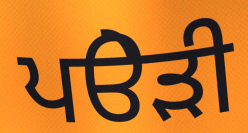
ਪੳੇੜੀ